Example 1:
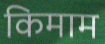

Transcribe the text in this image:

किमाम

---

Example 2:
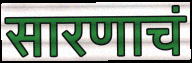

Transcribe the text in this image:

सारणाचं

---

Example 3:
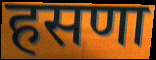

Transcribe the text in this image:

हसणा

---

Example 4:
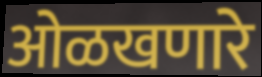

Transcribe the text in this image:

ओळखणारे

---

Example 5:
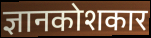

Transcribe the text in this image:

ज्ञानकोशकार